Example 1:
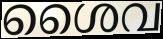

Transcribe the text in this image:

ശൈവ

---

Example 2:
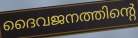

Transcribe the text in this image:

ദൈവജനത്തിന്റെ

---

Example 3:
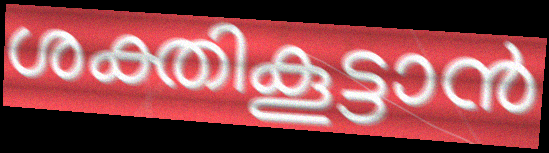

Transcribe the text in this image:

ശക്തികൂട്ടാൻ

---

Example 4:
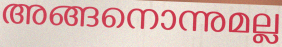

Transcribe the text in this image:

അങ്ങനൊന്നുമല്ല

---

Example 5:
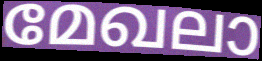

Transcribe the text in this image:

മേഖലാ